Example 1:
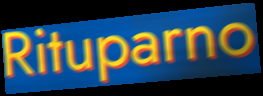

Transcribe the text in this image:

Rituparno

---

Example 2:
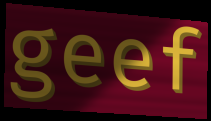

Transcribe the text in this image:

geef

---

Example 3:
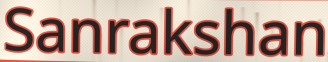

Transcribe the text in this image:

Sanrakshan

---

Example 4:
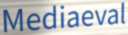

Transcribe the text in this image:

Mediaeval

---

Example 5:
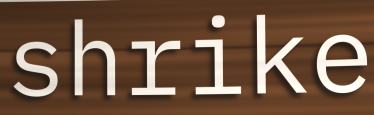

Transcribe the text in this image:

shrike